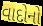
વાદોનો